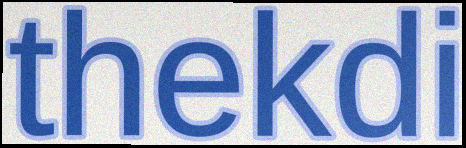
thekdi